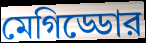
মেগিড্ডোর